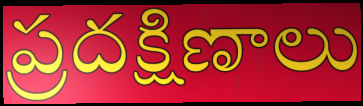
ప్రదక్షిణాలు